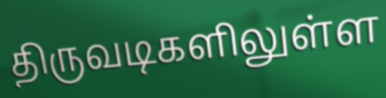
திருவடிகளிலுள்ள